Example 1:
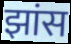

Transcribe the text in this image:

झांस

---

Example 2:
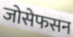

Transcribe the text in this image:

जोसेफसन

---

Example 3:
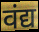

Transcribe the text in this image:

वंद्य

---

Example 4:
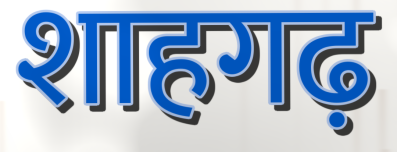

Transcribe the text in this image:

शाहगढ़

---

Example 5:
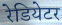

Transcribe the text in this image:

रेडियेटर